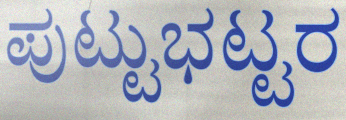
ಪುಟ್ಟುಭಟ್ಟರ